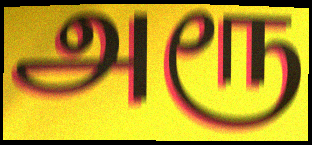
அரூ